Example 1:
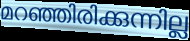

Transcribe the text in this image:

മറഞ്ഞിരിക്കുന്നില്ല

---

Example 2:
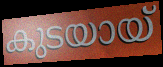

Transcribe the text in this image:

കുടയായ്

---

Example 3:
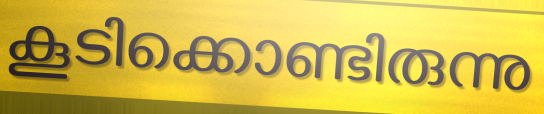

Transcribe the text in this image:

കൂടിക്കൊണ്ടിരുന്നു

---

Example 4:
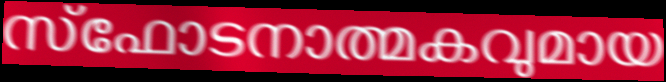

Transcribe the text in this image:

സ്ഫോടനാത്മകവുമായ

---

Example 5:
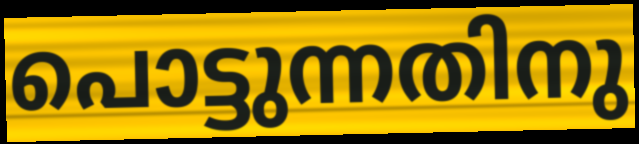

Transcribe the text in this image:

പൊട്ടുന്നതിനു